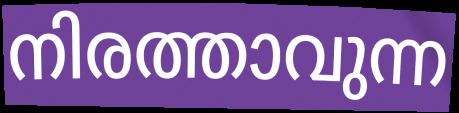
നിരത്താവുന്ന